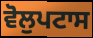
ਵੋਲੁਪਟਾਸ